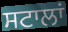
ਸਟਾਲਾਂ